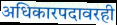
अधिकारपदावरही